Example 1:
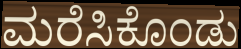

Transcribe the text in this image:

ಮರೆಸಿಕೊಂಡು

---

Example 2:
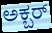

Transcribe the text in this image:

ಅಕ್ಬರ್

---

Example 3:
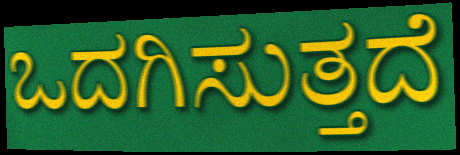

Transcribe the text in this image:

ಒದಗಿಸುತ್ತದೆ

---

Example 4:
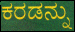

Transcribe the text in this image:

ಕರಡನ್ನು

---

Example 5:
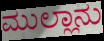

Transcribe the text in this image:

ಮುಲ್ಲಾನು